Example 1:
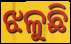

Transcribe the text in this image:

ଝଳୁଛି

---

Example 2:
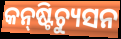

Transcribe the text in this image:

କନ୍‍ଷ୍ଟିଚ୍ୟୁସନ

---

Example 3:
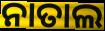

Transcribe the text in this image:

ନାତାଲ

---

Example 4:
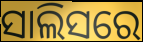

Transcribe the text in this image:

ସାଲିସରେ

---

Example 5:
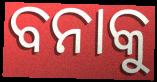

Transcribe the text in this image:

ବନାକୁ